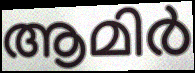
ആമിർ